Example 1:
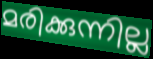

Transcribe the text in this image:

മരിക്കുന്നില്ല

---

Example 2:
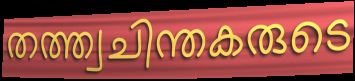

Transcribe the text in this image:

തത്ത്വചിന്തകരുടെ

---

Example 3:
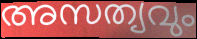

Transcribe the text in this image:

അസത്യവും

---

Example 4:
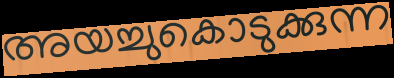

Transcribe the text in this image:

അയച്ചുകൊടുക്കുന്ന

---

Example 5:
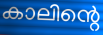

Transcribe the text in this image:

കാലിന്റെ